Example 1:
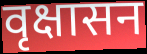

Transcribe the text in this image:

वृक्षासन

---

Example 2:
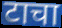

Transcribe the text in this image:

टाचा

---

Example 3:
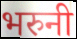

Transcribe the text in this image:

भरुनी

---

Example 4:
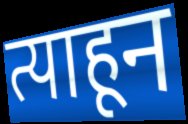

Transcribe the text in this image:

त्याहून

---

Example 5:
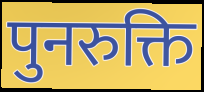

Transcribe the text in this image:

पुनरुक्ति